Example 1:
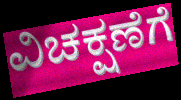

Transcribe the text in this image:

ವಿಚಕ್ಷಣೆಗೆ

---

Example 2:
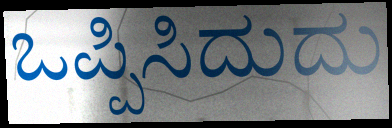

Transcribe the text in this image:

ಒಪ್ಪಿಸಿದುದು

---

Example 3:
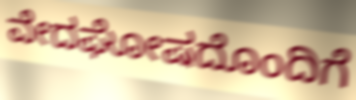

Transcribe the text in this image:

ವೇದಘೋಷದೊಂದಿಗೆ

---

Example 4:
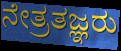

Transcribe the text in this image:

ನೇತ್ರತಜ್ಞರು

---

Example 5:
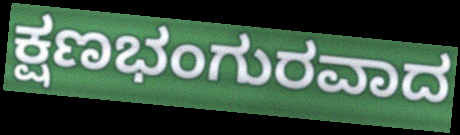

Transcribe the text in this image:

ಕ್ಷಣಭಂಗುರವಾದ